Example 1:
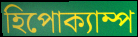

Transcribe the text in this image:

হিপোক্যাম্প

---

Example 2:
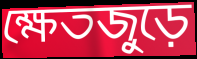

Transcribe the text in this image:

ক্ষেতজুড়ে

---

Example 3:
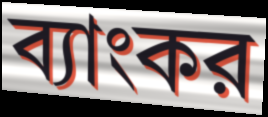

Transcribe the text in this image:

ব্যাংকর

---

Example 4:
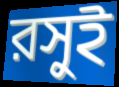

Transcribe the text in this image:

রসুই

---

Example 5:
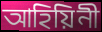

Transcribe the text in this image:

আহিয়িনী